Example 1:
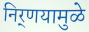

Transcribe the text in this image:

निर्णयामुळे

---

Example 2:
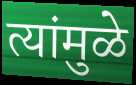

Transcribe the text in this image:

त्यांमुळे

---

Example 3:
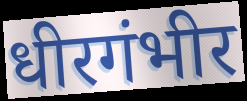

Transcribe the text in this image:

धीरगंभीर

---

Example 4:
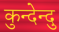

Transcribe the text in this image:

कुन्देन्दु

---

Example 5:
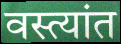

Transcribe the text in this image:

वस्त्यांत